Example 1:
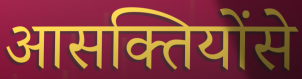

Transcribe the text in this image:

आसक्तियोंसे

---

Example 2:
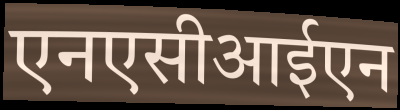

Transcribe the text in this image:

एनएसीआईएन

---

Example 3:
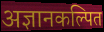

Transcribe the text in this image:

अज्ञानकल्पित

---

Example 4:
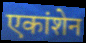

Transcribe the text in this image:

एकांशेन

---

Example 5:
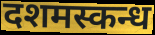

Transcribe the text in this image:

दशमस्कन्ध